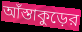
আঁস্তাকুড়ের